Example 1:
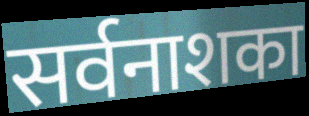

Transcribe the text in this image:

सर्वनाशका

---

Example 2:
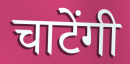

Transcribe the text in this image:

चाटेंगी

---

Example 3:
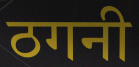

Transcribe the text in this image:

ठगनी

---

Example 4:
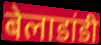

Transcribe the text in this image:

बेलाडांडी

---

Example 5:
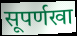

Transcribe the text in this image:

सूपर्णखा